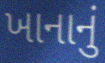
ખાનાનું